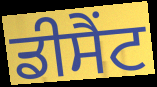
ਡੀਸੈਂਟ